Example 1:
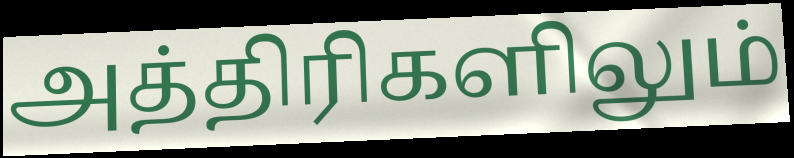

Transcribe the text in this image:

அத்திரிகளிலும்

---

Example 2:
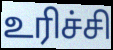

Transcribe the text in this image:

உரிச்சி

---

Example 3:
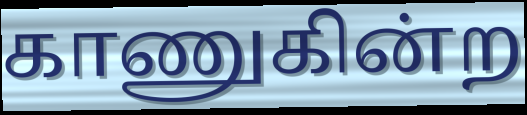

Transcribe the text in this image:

காணுகின்ற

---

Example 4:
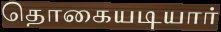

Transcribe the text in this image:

தொகையடியார்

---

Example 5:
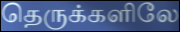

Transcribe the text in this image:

தெருக்களிலே